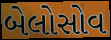
બેલોસોવ